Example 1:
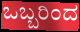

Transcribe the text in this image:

ಒಬ್ಬರಿಂದ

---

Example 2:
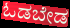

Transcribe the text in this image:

ಓಡಬೇಡ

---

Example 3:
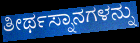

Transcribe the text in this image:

ತೀರ್ಥಸ್ನಾನಗಳನ್ನು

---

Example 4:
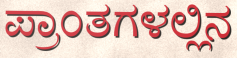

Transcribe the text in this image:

ಪ್ರಾಂತಗಳಲ್ಲಿನ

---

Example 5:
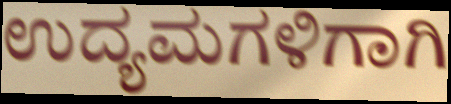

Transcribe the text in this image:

ಉದ್ಯಮಗಳಿಗಾಗಿ